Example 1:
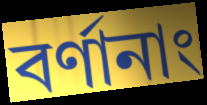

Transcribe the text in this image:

বর্ণানাং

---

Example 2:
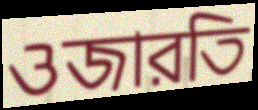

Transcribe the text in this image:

ওজারতি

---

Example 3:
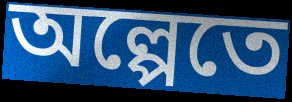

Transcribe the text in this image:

অল্পেতে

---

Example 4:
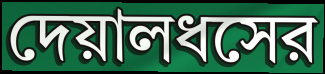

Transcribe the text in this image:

দেয়ালধসের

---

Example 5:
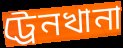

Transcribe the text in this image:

ট্রেনখানা